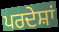
ਪਰਦੇਸ਼ਾਂ